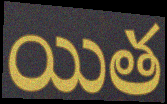
యిత